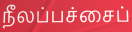
நீலப்பச்சைப்